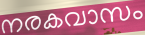
നരകവാസം